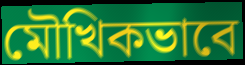
মৌখিকভাবে